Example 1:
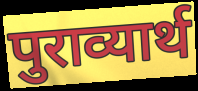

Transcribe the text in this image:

पुराव्यार्थ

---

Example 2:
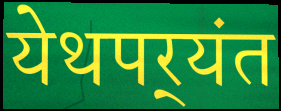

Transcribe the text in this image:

येथपर्यंत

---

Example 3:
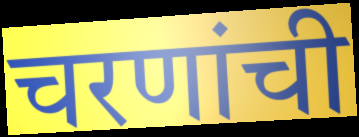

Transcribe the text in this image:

चरणांची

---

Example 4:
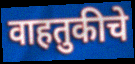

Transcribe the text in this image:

वाहतुकीचे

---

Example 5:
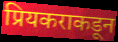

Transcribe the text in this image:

प्रियकराकडून